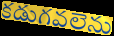
కడుగవలెను